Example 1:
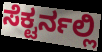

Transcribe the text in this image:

ಸೆಕ್ಟರ್ನಲ್ಲಿ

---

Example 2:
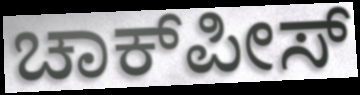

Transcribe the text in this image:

ಚಾಕ್‍ಪೀಸ್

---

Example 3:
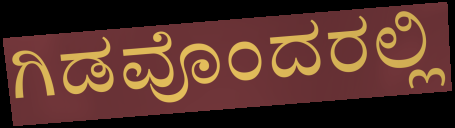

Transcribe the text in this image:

ಗಿಡವೊಂದರಲ್ಲಿ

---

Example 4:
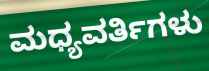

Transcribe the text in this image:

ಮಧ್ಯವರ್ತಿಗಳು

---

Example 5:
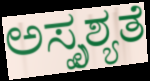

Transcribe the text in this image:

ಅಸ್ಪೃಶ್ಯತೆ